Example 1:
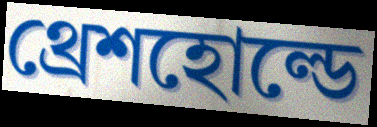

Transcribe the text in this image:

থ্রেশহোল্ডে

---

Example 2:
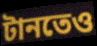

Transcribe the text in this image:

টানতেও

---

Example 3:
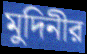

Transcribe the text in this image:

মুদিনীর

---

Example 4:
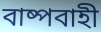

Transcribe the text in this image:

বাষ্পবাহী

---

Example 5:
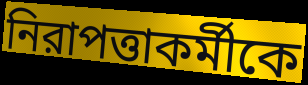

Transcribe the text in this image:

নিরাপত্তাকর্মীকে